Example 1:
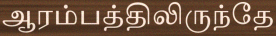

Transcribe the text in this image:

ஆரம்பத்திலிருந்தே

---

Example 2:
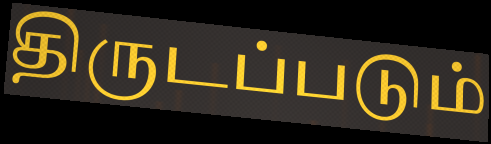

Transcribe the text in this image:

திருடப்படும்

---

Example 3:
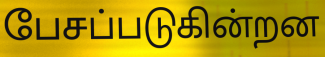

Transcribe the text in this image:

பேசப்படுகின்றன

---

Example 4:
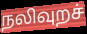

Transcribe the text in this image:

நலிவுறச்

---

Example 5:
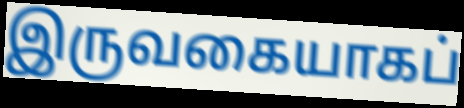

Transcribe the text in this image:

இருவகையாகப்